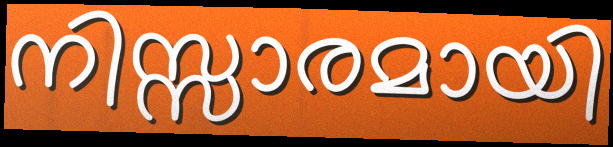
നിസ്സാരമായി